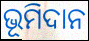
ଭୂମିଦାନ